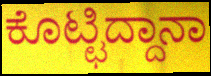
ಕೊಟ್ಟಿದ್ದಾನಾ